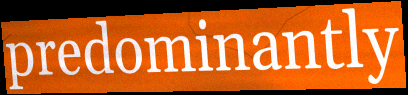
predominantly